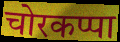
चोरकप्पा